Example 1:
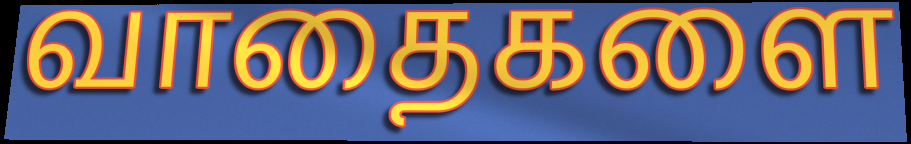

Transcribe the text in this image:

வாதைகளை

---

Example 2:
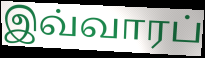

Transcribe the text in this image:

இவ்வாரப்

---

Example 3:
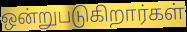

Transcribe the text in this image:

ஒன்றுபடுகிறார்கள்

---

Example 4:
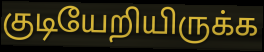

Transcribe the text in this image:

குடியேறியிருக்க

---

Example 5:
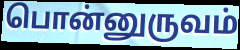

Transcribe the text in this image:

பொன்னுருவம்